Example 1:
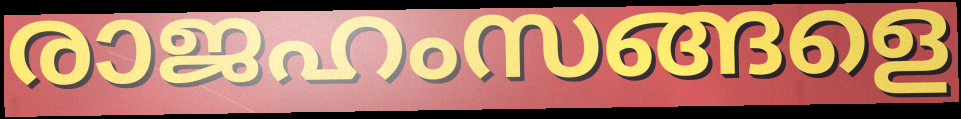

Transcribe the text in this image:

രാജഹംസങ്ങളെ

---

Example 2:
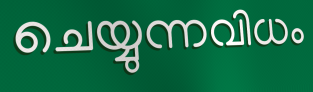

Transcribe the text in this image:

ചെയ്യുന്നവിധം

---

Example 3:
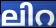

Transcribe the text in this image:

ലിറ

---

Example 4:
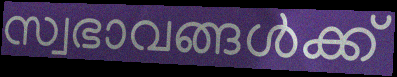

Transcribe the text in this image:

സ്വഭാവങ്ങൾക്ക്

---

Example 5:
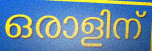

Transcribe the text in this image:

ഒരാളിന്